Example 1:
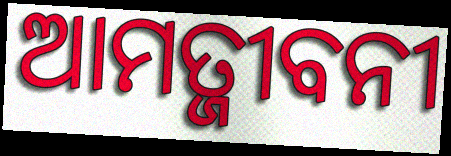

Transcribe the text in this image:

ଆମତ୍ଜୀବନୀ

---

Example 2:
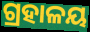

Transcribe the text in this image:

ଗ୍ରହାଳୟ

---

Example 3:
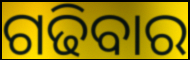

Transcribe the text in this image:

ଗଢିବାର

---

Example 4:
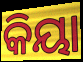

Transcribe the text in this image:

କିୟା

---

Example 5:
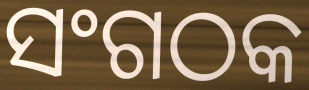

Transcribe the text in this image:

ସଂଗଠକ